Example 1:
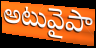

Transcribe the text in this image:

అటువైపా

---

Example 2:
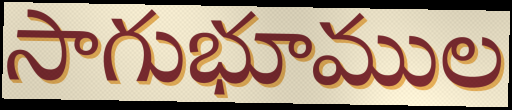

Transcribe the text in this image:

సాగుభూముల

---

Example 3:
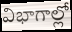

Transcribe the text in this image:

విభాగాల్లో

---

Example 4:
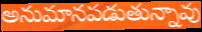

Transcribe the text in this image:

అనుమానపడుతున్నావు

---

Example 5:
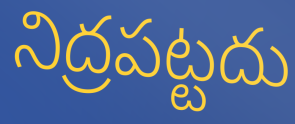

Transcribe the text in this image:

నిద్రపట్టదు